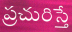
ప్రచురిస్తే